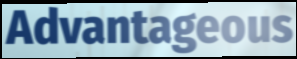
Advantageous